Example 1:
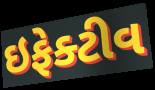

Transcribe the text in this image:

ઇફેક્ટીવ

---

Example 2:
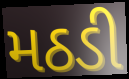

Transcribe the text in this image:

મઠડી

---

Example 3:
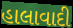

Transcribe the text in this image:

હાલાવાદી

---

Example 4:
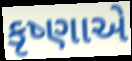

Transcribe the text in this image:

કૃષ્ણાએ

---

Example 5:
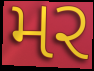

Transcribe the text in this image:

મર